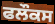
ਫਲੌਕਸ